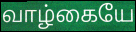
வாழ்கையே